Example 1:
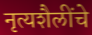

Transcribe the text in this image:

नृत्यशैलींचे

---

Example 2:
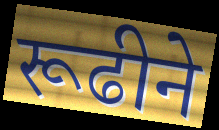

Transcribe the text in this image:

रूढीने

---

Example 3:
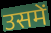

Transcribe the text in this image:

उसमें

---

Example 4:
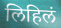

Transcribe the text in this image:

लिहिलं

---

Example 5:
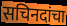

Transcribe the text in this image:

सचिनदांचा